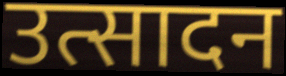
उत्सादन